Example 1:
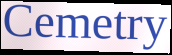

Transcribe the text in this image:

Cemetry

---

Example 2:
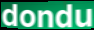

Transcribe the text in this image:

dondu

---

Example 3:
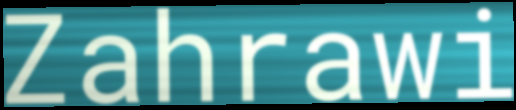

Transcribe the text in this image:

Zahrawi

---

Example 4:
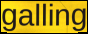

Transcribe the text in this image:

galling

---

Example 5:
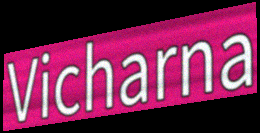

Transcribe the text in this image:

Vicharna